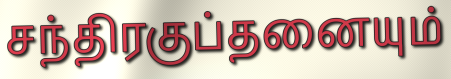
சந்திரகுப்தனையும்